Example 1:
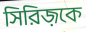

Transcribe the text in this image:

সিরিজ়কে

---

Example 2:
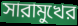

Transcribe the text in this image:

সারামুখের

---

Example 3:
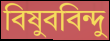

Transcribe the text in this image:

বিষুববিন্দু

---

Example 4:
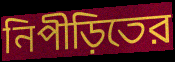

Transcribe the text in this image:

নিপীড়িতের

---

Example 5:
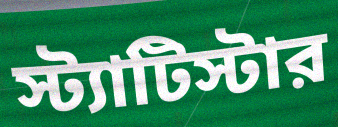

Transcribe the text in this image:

স্ট্যাটিস্টার